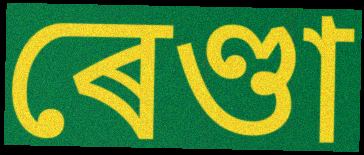
ৰেণ্ডা